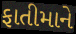
ફાતીમાને